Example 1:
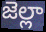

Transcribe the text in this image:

జెల్లా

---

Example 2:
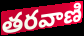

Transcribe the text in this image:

తరవాణి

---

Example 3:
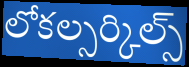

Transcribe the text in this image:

లోకల్సర్కిల్స్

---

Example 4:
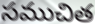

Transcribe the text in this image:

సముచిత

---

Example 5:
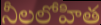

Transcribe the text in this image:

నీలలోహిత